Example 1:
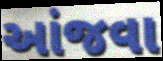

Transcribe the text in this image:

આંજવા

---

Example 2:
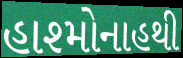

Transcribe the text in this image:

હાશ્મોનાહથી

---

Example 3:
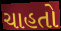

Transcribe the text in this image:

ચાહતો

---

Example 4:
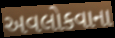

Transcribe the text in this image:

અવલોકવાના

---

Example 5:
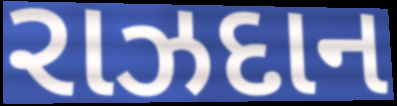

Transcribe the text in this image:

રાઝદાન